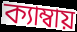
ক্যাম্বায়